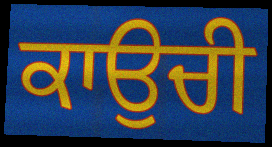
ਕਾਉਚੀ